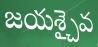
జయశ్చైవ